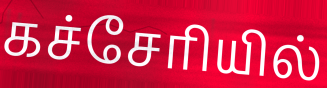
கச்சேரியில்